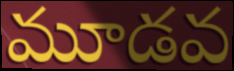
మూడవ